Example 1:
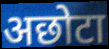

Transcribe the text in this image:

अछोटा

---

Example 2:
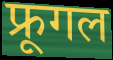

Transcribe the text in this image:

फ्रूगल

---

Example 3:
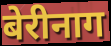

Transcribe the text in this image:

बेरीनाग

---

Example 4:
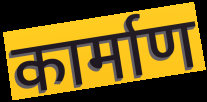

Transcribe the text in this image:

कार्माण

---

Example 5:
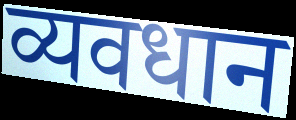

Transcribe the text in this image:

व्यवधान